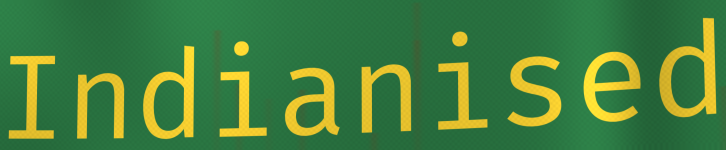
Indianised